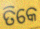
ତିକେ